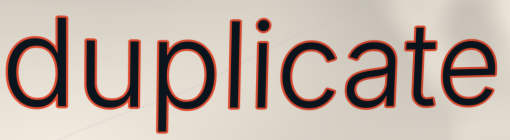
duplicate